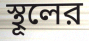
স্থূলের